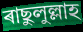
ৰাছুলুল্লাহ